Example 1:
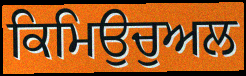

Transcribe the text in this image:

ਕਿਮਿਉਚੁਅਲ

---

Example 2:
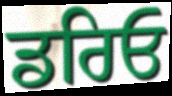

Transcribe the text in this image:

ਡਰਿਓ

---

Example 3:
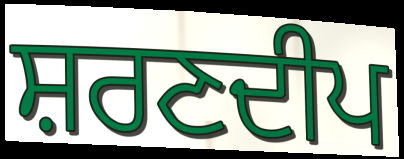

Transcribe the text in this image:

ਸ਼ਰਣਦੀਪ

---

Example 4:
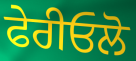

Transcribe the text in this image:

ਫੇਰੀਓਲੋ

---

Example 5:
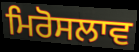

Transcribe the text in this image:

ਮਿਰੋਸਲਾਵ